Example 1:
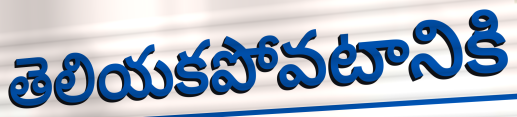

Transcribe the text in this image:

తెలియకపోవటానికి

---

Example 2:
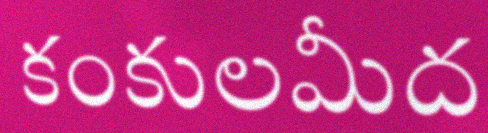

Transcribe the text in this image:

కంకులమీద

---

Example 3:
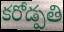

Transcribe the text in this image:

కరోడ్పతి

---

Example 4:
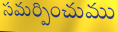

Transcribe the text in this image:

సమర్పించుము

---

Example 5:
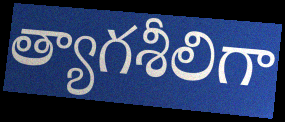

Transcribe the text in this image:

త్యాగశీలిగా